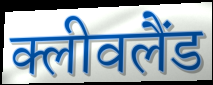
क्‍लीवलैंड